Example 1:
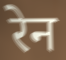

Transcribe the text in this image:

रेन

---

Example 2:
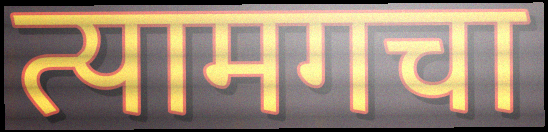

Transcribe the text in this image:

त्यामगचा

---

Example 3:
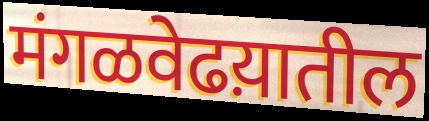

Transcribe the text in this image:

मंगळवेढय़ातील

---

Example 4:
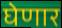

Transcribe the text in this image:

घेणार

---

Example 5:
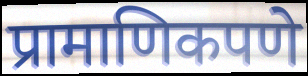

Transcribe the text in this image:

प्रामाणिकपणे